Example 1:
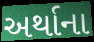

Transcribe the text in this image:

અર્થાના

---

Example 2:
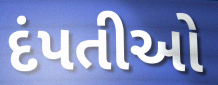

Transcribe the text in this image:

દંપતીઓ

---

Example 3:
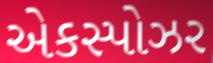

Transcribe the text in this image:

એકસ્પોઝર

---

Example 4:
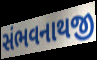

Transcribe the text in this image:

સંભવનાથજી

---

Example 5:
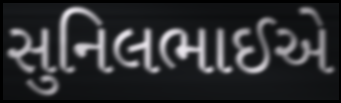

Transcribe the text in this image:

સુનિલભાઈએ